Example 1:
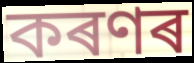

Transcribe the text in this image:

কৰণৰ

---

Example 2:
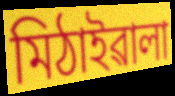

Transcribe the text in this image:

মিঠাইৱালা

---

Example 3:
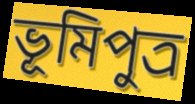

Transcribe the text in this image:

ভূমিপুত্ৰ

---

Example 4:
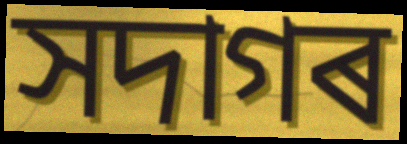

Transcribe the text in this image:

সদাগৰ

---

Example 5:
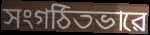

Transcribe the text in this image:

সংগঠিতভাৱে